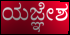
ಯಜ್ಞೇಶ